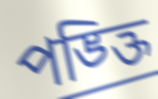
পঙ্ক্তি